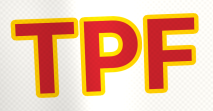
TPF